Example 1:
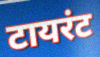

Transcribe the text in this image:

टायरंट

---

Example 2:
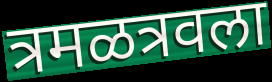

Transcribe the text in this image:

त्रमळत्रवला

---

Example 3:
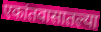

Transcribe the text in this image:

एकांतवासातल्या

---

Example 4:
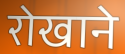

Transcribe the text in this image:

रोखाने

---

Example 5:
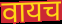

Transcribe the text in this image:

वायच